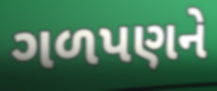
ગળપણને